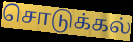
சொடுக்கல்